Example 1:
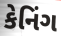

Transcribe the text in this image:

કેનિંગ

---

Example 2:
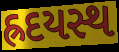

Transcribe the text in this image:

હ્રદયસ્થ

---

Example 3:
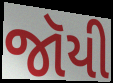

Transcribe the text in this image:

જૉયી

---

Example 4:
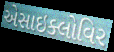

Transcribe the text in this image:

એસાઇક્લોવિર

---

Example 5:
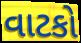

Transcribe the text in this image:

વાટકો